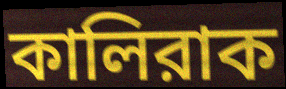
কালিরাক